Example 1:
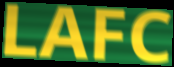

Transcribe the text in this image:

LAFC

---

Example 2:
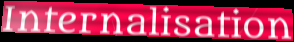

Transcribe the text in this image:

Internalisation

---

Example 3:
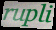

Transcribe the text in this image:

rupli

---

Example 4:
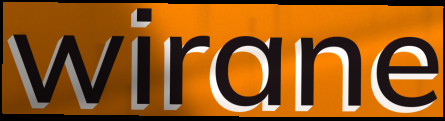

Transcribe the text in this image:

wirane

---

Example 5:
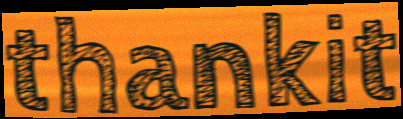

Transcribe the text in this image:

thankit